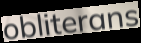
obliterans